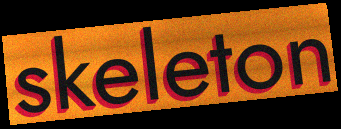
skeleton